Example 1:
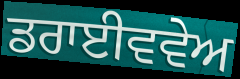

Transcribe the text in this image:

ਡਰਾਈਵਵੇਅ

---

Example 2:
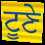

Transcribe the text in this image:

ਟੂਣੇ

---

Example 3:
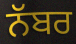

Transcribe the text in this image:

ਨੱਬਰ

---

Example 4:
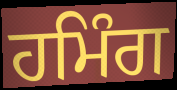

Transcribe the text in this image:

ਹਮਿੰਗ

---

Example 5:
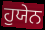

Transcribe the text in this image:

ਹੁਯੇਨ